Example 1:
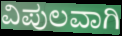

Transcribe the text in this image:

ವಿಪುಲವಾಗಿ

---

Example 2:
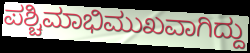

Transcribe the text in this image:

ಪಶ್ಚಿಮಾಭಿಮುಖವಾಗಿದ್ದು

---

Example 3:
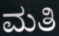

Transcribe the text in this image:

ಮತಿ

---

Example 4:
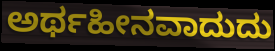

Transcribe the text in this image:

ಅರ್ಥಹೀನವಾದುದು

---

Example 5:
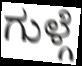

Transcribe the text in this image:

ಗುಳ್ಗೆ